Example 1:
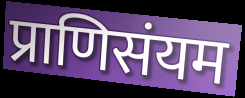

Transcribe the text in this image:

प्राणिसंयम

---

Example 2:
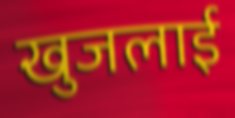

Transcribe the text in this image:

खुजलाई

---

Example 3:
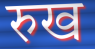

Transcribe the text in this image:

रुख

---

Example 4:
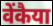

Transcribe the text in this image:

वेंकैया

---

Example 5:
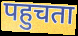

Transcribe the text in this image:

पहुचता